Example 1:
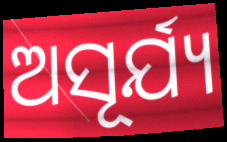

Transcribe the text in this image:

ଅସୂର୍ଯ୍ୟ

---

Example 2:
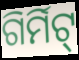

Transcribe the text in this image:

ଗିର୍ମିଟ୍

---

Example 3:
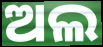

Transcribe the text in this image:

ଅଲ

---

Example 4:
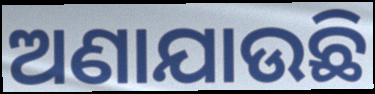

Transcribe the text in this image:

ଅଣାଯାଉଛି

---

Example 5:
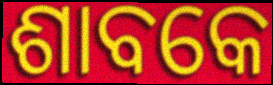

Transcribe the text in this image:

ଶାବକେ